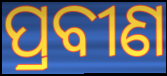
ପ୍ରବୀଣ